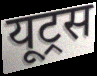
यूट्रस